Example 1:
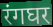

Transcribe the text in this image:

रंगघर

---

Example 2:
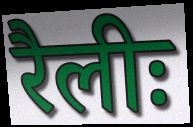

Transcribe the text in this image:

रैलीः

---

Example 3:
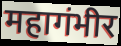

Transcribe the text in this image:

महागंभीर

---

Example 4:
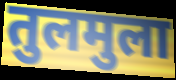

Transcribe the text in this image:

तुलमुला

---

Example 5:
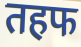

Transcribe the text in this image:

तहफ